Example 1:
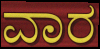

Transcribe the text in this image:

ವಾರ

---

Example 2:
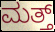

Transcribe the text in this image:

ಮತ್ತ್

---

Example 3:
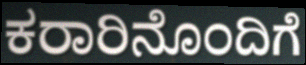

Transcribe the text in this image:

ಕರಾರಿನೊಂದಿಗೆ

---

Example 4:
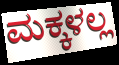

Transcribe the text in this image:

ಮಕ್ಕಳಲ್ಲ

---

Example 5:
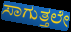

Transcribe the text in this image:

ಸಾಗುತ್ತಲೇ